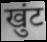
खुंट